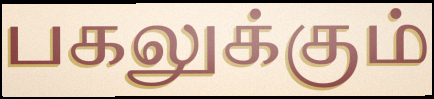
பகலுக்கும்